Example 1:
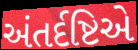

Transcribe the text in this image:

અંતર્દષ્ટિએ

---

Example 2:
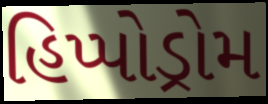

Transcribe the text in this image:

હિપ્પોડ્રોમ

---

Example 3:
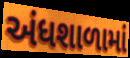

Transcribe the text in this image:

અંધશાળામાં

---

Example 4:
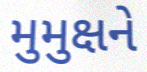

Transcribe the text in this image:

મુમુક્ષને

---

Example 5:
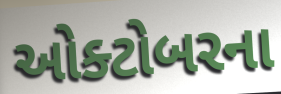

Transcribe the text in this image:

ઓક્ટોબરના